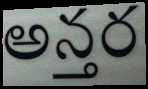
అన్తర